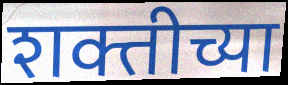
शक्तीच्या